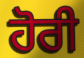
ਹੋਰੀ